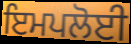
ਇਮਪਲੋਈ